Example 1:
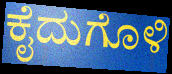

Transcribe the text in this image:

ಕೈದುಗೊಳಿ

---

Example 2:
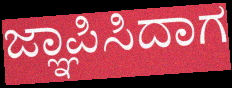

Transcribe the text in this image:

ಜ್ಞಾಪಿಸಿದಾಗ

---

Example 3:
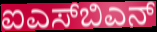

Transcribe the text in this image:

ಐಎಸ್‌ಬಿಎನ್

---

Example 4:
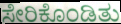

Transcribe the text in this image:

ಸೇರಿಕೊಂಡಿತು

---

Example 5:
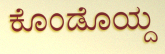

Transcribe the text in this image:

ಕೊಂಡೊಯ್ದ